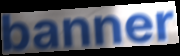
banner